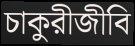
চাকুরীজীবি